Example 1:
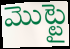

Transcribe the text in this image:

మొట్టై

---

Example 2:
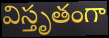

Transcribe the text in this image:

విస్తృతంగా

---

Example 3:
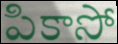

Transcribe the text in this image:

పికాసో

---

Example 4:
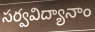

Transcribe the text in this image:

సర్వవిద్యానాం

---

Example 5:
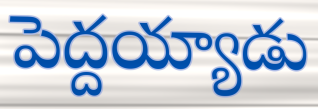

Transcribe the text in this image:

పెద్దయ్యాడు